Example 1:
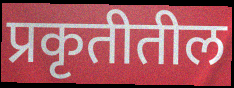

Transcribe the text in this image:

प्रकृतीतील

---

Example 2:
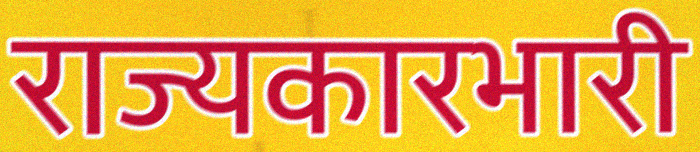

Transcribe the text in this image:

राज्यकारभारी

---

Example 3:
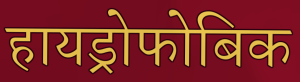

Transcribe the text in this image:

हायड्रोफोबिक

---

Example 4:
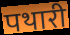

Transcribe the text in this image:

पथारी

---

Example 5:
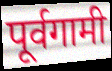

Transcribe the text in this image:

पूर्वगामी